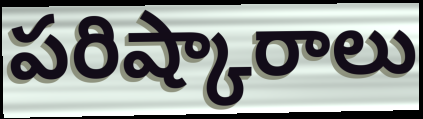
పరిష్కారాలు